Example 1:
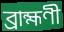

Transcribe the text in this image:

ব্রাহ্মণী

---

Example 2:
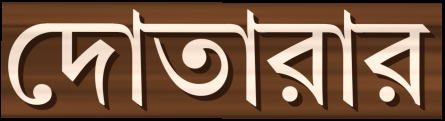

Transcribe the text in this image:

দোতারার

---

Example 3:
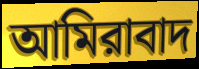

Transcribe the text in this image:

আমিরাবাদ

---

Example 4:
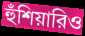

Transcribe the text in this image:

হুঁশিয়ারিও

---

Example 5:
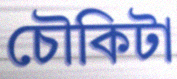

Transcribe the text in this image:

চৌকিটা